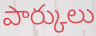
పార్కులు